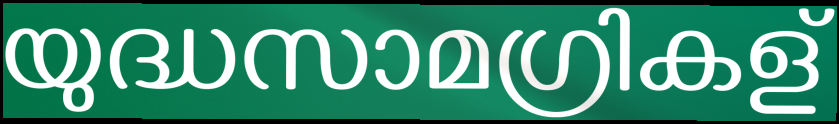
യുദ്ധസാമഗ്രികള്